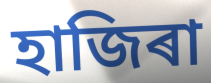
হাজিৰা